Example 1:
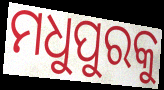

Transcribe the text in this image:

ମଧୁପୁରକୁ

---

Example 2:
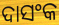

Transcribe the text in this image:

ଦାସଂକ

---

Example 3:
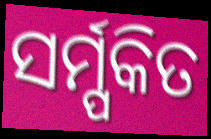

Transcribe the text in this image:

ସର୍ମ୍ପକିତ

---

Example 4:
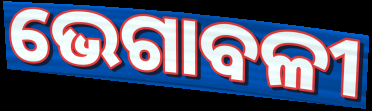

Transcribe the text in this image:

ଭେଗାବଳୀ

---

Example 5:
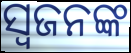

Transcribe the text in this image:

ସ୍ଵଜନଙ୍କ